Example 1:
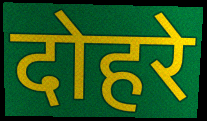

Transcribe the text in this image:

दोहरे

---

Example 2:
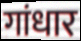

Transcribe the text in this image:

गांधार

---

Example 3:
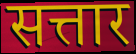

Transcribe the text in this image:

सत्तार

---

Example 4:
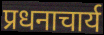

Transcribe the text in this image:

प्रधनाचार्य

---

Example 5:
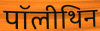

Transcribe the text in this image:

पॉलीथिन